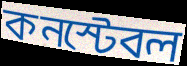
কনস্টেবল